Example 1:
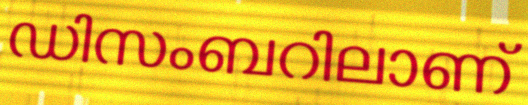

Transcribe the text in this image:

ഡിസംബറിലാണ്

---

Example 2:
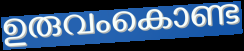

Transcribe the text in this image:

ഉരുവംകൊണ്ട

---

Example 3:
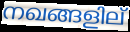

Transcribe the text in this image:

നഖങ്ങളില്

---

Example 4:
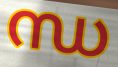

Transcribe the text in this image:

ന്ധ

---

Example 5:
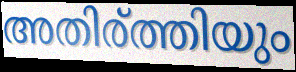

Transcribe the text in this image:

അതിര്ത്തിയും